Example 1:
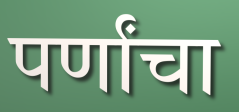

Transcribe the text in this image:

पर्णांचा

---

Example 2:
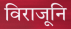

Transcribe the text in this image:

विराजूनि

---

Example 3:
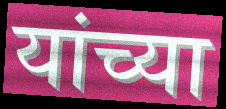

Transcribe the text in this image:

यांच्या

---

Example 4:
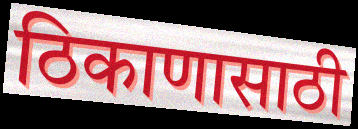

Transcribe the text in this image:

ठिकाणासाठी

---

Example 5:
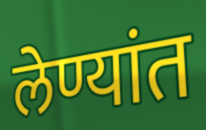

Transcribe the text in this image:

लेण्यांत